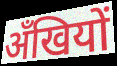
अँखियों